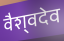
वैश्वदेव